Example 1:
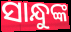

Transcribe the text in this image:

ସାନ୍ଧୁଙ୍କ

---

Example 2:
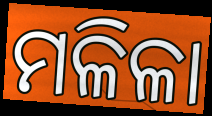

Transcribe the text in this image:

ମଳିଳା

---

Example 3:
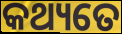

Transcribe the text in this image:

କଥ୍ୟତେ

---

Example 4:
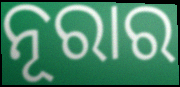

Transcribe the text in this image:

ନୂରାର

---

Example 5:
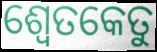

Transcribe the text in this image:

ଶ୍ୱେତକେତୁ